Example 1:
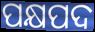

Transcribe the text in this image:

ପକ୍ଷପଦ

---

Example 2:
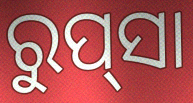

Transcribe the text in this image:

ରୁପ୍‍ସା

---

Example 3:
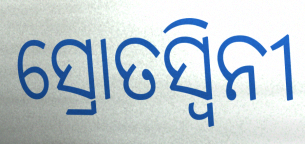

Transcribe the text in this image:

ସ୍ରୋତସ୍ୱିନୀ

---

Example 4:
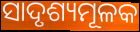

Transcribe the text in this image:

ସାଦୃଶ୍ୟମୂଳକ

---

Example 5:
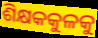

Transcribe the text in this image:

ଶିକ୍ଷକକୁଳକୁ